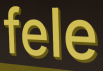
fele